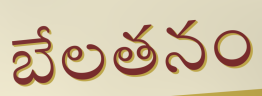
బేలతనం